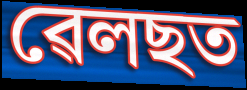
ৱেলছত